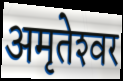
अमृतेश्वर